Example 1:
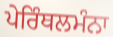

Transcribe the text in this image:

ਪੇਰਿੰਥਲਮੰਨਾ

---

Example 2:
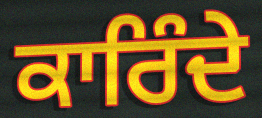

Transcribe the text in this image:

ਕਾਰਿੰਦੇ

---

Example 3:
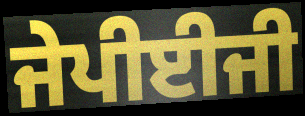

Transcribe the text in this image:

ਜੇਪੀਈਜੀ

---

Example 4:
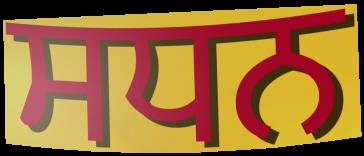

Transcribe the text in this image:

ਸਧਨ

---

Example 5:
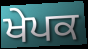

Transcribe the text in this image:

ਖੇਪਕ